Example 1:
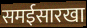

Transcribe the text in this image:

समईसारखा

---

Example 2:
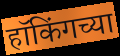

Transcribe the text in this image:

हॉकिंगच्या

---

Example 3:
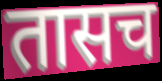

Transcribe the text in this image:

तासच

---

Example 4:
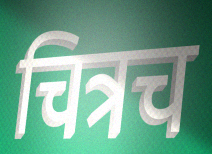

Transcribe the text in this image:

चित्रच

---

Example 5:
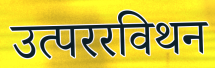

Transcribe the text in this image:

उत्पररविथन